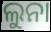
ଲୁନା